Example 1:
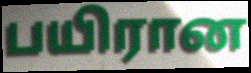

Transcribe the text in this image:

பயிரான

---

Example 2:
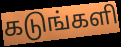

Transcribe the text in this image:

கடுங்களி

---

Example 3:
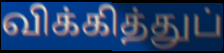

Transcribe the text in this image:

விக்கித்துப்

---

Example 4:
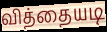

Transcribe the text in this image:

வித்தையடி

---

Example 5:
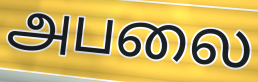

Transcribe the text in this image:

அபலை